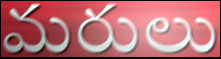
మరులు